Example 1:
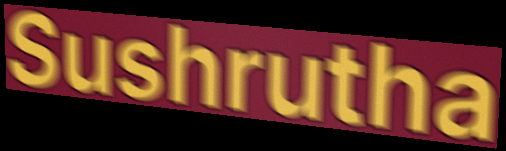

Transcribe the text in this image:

Sushrutha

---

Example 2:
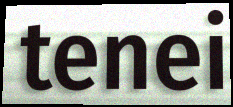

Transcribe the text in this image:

tenei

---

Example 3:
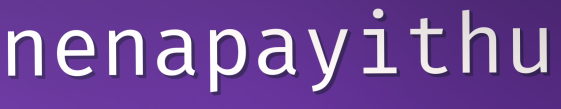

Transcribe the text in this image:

nenapayithu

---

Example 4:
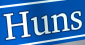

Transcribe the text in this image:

Huns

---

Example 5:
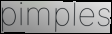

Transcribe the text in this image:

pimples